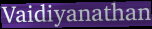
Vaidiyanathan